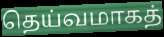
தெய்வமாகத்